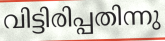
വിട്ടിരിപ്പതിന്നു